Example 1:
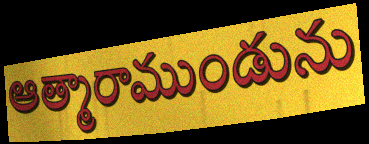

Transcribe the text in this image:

ఆత్మారాముండును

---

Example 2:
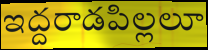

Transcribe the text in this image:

ఇద్దరాడపిల్లలూ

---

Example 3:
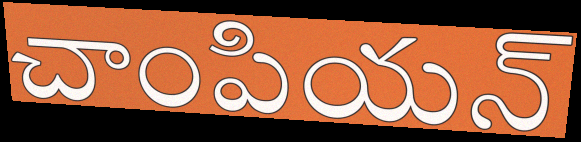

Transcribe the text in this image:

చాంపియన్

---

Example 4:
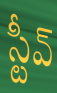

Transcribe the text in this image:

స్టీవ్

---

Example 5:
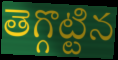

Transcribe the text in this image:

తెగ్గొట్టిన